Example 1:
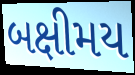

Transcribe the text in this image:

બક્ષીમય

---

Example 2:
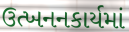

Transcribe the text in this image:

ઉત્ખનનકાર્યમાં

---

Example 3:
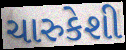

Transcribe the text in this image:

ચારુકેશી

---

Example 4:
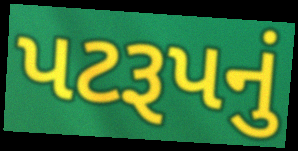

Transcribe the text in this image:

પટરૂપનું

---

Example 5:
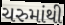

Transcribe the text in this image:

ચરુમાંથી